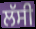
ਲੱਸੀ